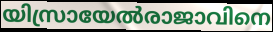
യിസ്രായേൽരാജാവിനെ